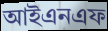
আইএনএফ